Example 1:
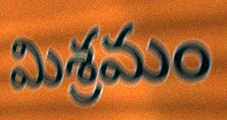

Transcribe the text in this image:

మిశ్రమం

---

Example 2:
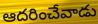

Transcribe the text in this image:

ఆదరించేవాడు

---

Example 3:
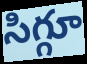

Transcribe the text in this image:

సిగ్గూ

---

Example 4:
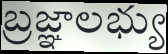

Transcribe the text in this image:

బ్రజ్ఞాలభ్యు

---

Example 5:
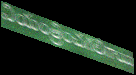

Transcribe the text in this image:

నియంత్రించగలిగాయి